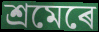
শ্ৰমেৰে